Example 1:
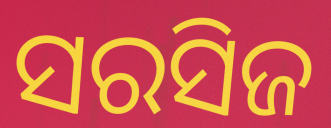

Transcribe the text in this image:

ସରସିଜ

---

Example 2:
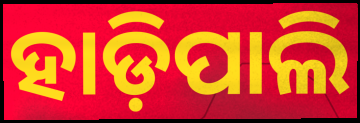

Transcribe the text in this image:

ହାଡ଼ିପାଲି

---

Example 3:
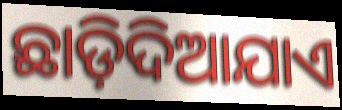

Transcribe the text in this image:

ଛାଡ଼ିଦିଆଯାଏ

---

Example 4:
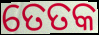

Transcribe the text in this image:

ତେତକ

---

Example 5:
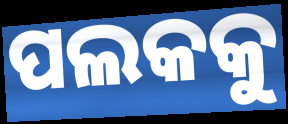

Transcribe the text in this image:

ପଲକକୁ